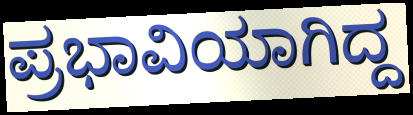
ಪ್ರಭಾವಿಯಾಗಿದ್ದ